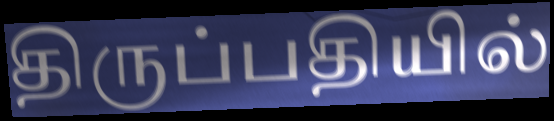
திருப்பதியில்